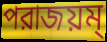
পরাজয়ম্